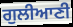
ਗੁਲੀਆਣੀ